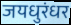
जयधुरंधर